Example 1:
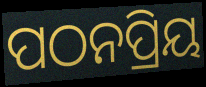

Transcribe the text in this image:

ପଠନପ୍ରିୟ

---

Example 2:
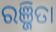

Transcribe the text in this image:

ରଞ୍ଜିତା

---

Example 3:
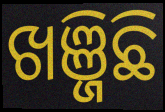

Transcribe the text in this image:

ଖଞ୍ଜିଛି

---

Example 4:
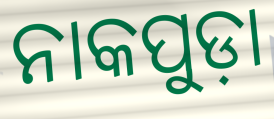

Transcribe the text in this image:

ନାକପୁଡ଼ା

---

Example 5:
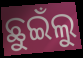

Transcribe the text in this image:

ଛୁଇଁଲୁ